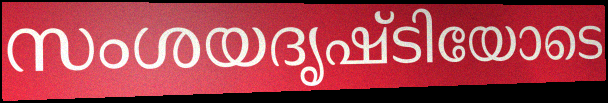
സംശയദൃഷ്ടിയോടെ